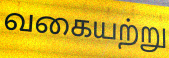
வகையற்று